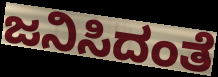
ಜನಿಸಿದಂತೆ